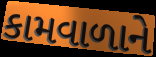
કામવાળાને